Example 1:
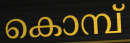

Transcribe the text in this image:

കൊമ്പ്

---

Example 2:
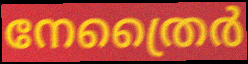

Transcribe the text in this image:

നേത്രൈർ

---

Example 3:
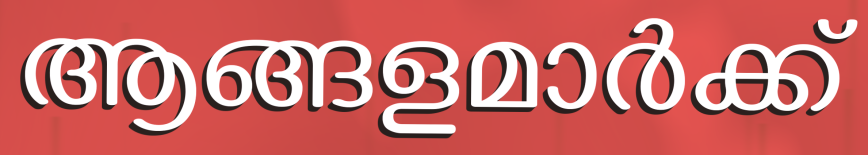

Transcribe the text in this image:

ആങ്ങളമാർക്ക്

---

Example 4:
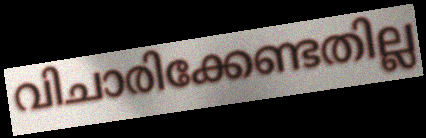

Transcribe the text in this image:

വിചാരിക്കേണ്ടതില്ല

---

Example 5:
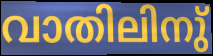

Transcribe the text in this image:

വാതിലിനു്